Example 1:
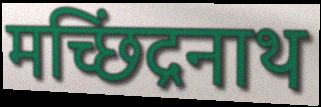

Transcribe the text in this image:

मच्छिंद्रनाथ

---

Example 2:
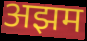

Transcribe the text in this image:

अझम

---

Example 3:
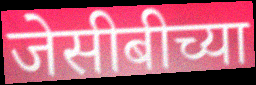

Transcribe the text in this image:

जेसीबीच्या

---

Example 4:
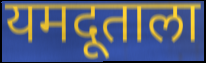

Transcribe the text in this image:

यमदूताला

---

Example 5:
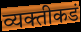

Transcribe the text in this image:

व्यक्तीकडं